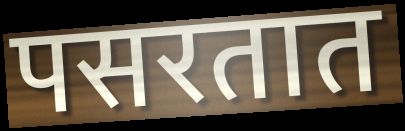
पसरतात